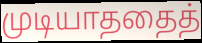
முடியாததைத்